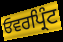
ਓਵਰਪ੍ਰਿੰਟ